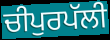
ਚੀਪੁਰਪੱਲੀ